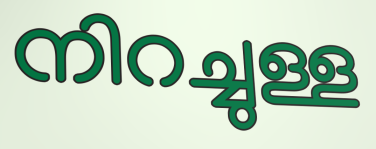
നിറച്ചുള്ള